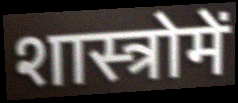
शास्त्रोमें